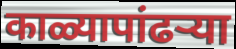
काळ्यापांढऱ्या